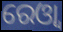
ରେଓ୍ବା